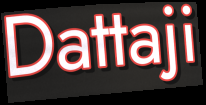
Dattaji